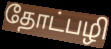
தோட்பழி